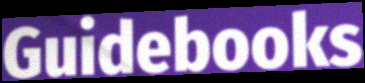
Guidebooks